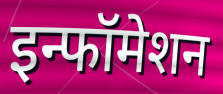
इन्फॉमेशन